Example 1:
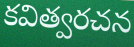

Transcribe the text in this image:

కవిత్వరచన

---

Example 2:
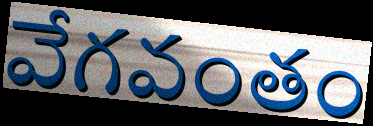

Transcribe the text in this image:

వేగవంతం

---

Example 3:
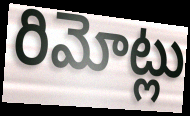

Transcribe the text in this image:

రిమోట్లు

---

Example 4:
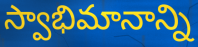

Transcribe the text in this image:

స్వాభిమానాన్ని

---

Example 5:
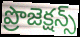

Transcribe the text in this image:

ప్రొజెక్షన్స్